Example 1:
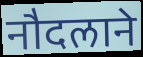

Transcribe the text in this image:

नौदलाने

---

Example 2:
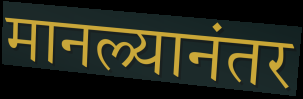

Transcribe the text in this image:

मानल्यानंतर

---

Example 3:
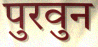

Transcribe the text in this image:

पुरवुन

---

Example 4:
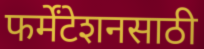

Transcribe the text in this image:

फर्मेंटेशनसाठी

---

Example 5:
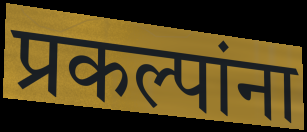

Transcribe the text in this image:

प्रकल्पांना